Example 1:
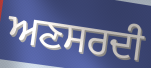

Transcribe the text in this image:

ਅਣਸਰਦੀ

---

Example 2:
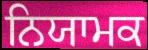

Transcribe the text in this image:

ਨਿਯਾਮਕ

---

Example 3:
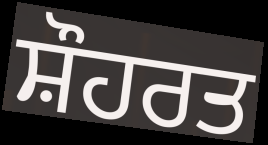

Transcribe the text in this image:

ਸ਼ੌਹਰਤ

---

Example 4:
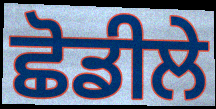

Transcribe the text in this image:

ਛੋਡੀਲੇ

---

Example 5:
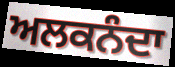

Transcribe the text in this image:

ਅਲਕਨੰਦਾ